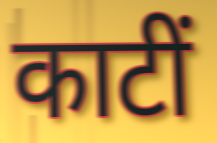
काटीं